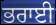
ਭਰਾਈ